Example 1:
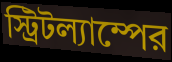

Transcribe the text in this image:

স্ট্রিটল্যাম্পের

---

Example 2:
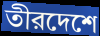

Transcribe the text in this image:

তীরদেশে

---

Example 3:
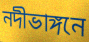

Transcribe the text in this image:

নদীভাঙ্গনে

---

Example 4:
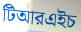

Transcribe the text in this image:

টিআরএইচ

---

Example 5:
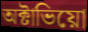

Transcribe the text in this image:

অক্টাভিয়ো